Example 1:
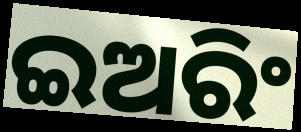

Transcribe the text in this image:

ଇଅରିଂ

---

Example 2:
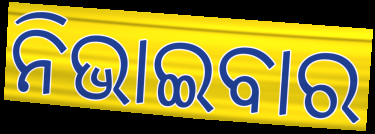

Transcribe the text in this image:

ନିଭାଇବାର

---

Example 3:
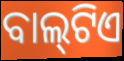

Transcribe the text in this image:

ବାଲ୍‍ଟିଏ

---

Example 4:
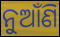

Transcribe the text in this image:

ନୁଆଁଣି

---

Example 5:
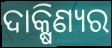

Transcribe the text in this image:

ଦାକ୍ଷିଣ୍ୟର